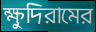
ক্ষুদিরামের